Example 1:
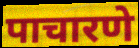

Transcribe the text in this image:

पाचारणे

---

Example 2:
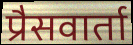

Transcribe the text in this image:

प्रैसवार्ता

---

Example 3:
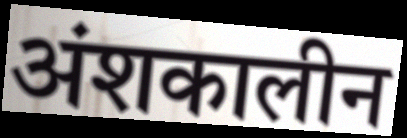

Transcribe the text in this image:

अंशकालीन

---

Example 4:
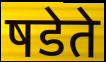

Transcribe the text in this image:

षडेते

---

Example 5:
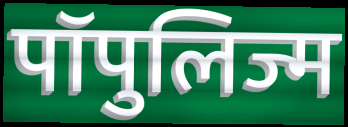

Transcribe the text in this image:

पॉपुलिज्म